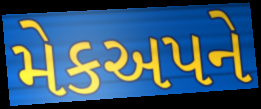
મેકઅપને